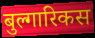
बुल्गारिकस